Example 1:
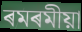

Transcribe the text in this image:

ৰমৰমীয়া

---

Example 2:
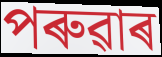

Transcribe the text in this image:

পৰুৱাৰ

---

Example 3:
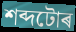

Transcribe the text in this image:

শব্দটোৰ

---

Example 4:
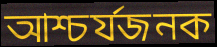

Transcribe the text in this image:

আশ্চৰ্যজনক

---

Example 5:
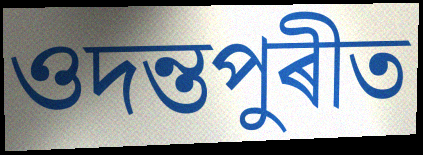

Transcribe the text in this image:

ওদন্তপুৰীত